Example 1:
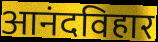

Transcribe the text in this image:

आनंदविहार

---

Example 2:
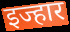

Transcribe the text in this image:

इज्हार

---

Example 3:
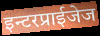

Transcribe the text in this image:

इन्टरप्राईजेज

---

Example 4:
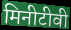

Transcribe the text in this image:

मिनीटीवी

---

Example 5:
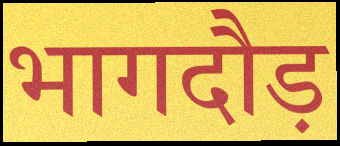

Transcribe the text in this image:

भागदौड़